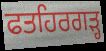
ਫਤਹਿਰਗੜ੍ਹ